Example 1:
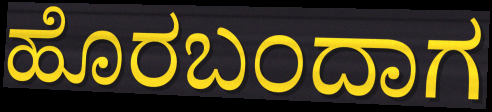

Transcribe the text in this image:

ಹೊರಬಂದಾಗ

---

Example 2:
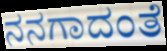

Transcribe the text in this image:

ನನಗಾದಂತೆ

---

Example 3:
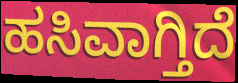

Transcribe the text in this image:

ಹಸಿವಾಗ್ತಿದೆ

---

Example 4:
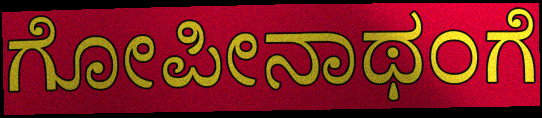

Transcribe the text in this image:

ಗೋಪೀನಾಥಂಗೆ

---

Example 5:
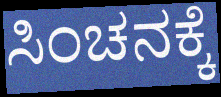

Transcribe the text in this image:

ಸಿಂಚನಕ್ಕೆ